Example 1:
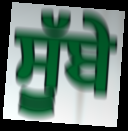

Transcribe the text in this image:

ਸੂੱਬੇ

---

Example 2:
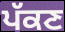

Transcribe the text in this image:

ਪੱਕਣ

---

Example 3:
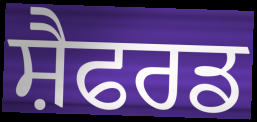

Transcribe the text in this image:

ਸ਼ੈਫਰਡ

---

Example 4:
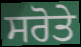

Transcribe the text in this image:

ਸਰੋਤੇ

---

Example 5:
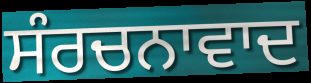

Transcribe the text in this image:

ਸੰਰਚਨਾਵਾਦ